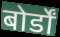
बोर्डों